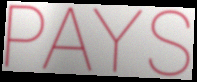
PAYS